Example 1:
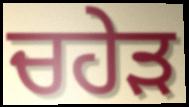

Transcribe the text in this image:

ਚਹੇੜ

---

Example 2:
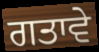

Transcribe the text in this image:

ਗਤਾਵੇ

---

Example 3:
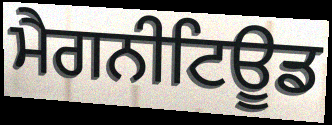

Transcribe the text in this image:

ਮੈਗਨੀਟਿਊਡ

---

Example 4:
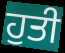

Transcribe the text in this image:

ਹੁਤੀ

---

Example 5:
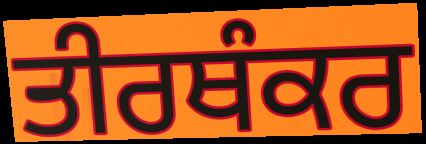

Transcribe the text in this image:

ਤੀਰਥੰਕਰ